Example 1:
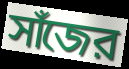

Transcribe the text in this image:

সাঁজের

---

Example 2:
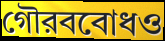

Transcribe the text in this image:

গৌরববোধও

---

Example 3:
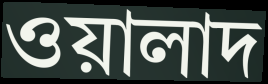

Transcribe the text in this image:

ওয়ালাদ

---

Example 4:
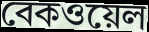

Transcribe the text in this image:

বেকওয়েল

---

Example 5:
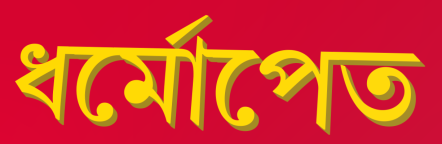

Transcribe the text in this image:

ধর্মোপেত